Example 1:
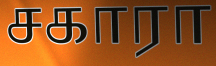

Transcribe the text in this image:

சகாரா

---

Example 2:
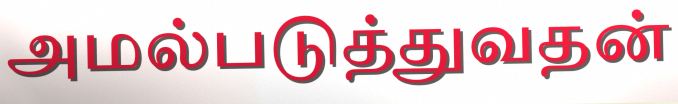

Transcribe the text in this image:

அமல்படுத்துவதன்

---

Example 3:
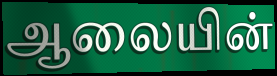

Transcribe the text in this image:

ஆலையின்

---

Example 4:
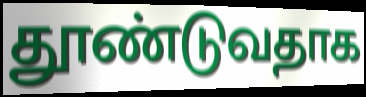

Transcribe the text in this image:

தூண்டுவதாக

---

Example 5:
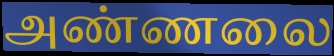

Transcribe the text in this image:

அண்ணலை